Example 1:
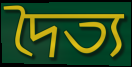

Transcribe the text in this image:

দৈত্য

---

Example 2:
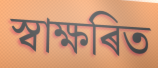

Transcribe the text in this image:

স্বাক্ষৰিত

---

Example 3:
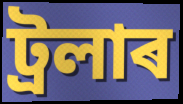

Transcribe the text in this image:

ট্ৰলাৰ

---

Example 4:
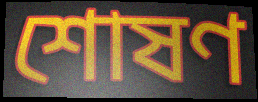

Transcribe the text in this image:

শোষণ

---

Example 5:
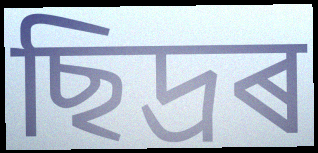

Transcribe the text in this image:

ছিদ্ৰৰ